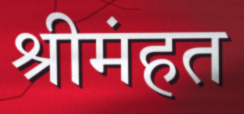
श्रीमंहत